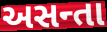
અસન્તા